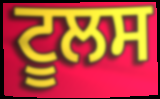
ਟੂਲਸ